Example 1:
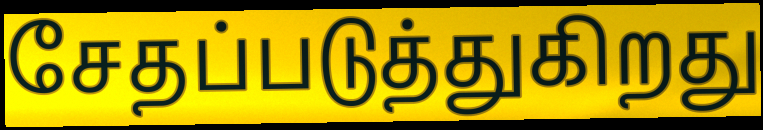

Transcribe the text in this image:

சேதப்படுத்துகிறது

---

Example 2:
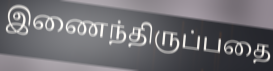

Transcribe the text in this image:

இணைந்திருப்பதை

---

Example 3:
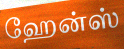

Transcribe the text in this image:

ஹேன்ஸ்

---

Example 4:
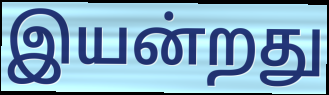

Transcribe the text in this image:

இயன்றது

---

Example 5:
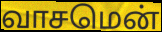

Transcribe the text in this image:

வாசமென்